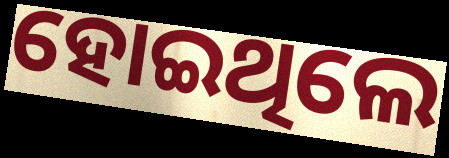
ହୋଇଥିଲେ